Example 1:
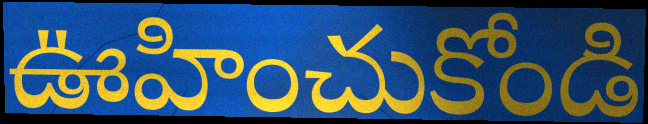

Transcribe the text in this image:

ఊహించుకోండి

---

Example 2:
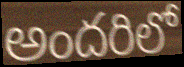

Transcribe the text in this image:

అందరిలో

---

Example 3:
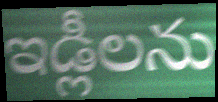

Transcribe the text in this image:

ఇడ్లీలను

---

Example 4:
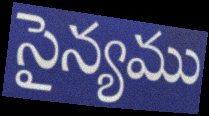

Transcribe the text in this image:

సైన్యము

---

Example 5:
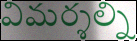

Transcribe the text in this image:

విమర్శల్ని